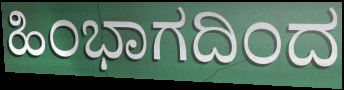
ಹಿಂಭಾಗದಿಂದ